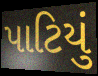
પાટિયું